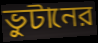
ভুটানের